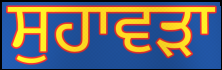
ਸੁਹਾਵੜਾ